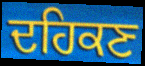
ਦਹਿਕਣ